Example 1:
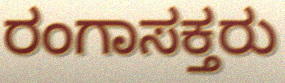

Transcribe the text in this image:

ರಂಗಾಸಕ್ತರು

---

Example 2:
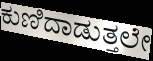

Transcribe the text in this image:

ಕುಣಿದಾಡುತ್ತಲೇ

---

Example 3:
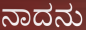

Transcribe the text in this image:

ನಾದನು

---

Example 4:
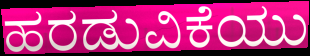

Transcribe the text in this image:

ಹರಡುವಿಕೆಯು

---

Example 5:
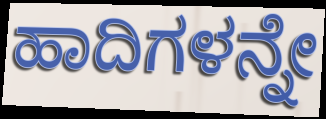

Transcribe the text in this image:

ಹಾದಿಗಳನ್ನೇ